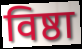
विष्ठा